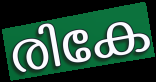
രികേ